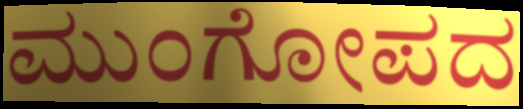
ಮುಂಗೋಪದ